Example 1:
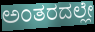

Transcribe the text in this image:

ಅಂತರದಲ್ಲೇ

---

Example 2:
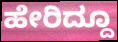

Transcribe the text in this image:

ಹೇರಿದ್ದೂ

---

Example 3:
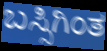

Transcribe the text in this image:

ಬಸ್ಸಿಗಿಂತ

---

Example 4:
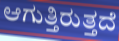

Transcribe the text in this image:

ಆಗುತ್ತಿರುತ್ತದೆ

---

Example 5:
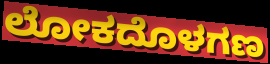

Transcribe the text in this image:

ಲೋಕದೊಳಗಣ